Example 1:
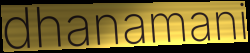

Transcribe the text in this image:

dhanamani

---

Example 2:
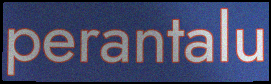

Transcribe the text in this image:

perantalu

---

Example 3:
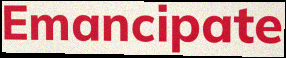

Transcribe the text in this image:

Emancipate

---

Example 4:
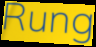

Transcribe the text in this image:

Rung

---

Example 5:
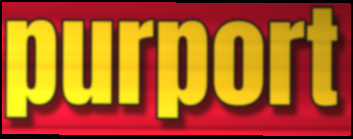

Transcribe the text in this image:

purport